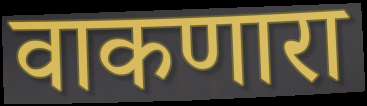
वाकणारा